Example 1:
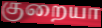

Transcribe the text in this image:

குறையா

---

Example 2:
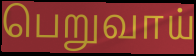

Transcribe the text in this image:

பெறுவாய்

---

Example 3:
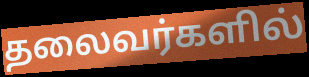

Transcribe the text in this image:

தலைவர்களில்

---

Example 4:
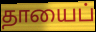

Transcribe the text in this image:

தாயைப்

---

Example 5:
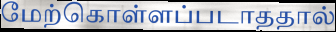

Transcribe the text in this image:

மேற்கொள்ளப்படாததால்